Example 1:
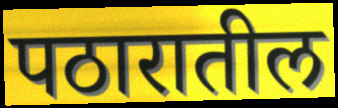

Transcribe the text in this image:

पठारातील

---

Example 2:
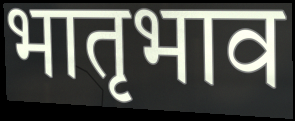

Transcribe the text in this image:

भातृभाव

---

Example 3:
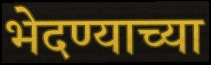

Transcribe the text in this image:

भेदण्याच्या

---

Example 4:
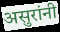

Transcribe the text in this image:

असुरांनी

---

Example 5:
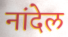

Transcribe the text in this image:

नांदेल